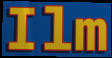
Ilm